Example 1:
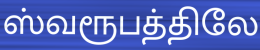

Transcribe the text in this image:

ஸ்வரூபத்திலே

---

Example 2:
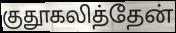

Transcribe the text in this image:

குதூகலித்தேன்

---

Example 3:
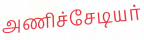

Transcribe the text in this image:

அணிச்சேடியர்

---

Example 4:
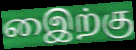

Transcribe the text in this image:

இைற்கு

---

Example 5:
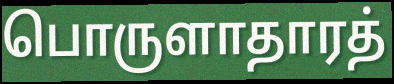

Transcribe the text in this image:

பொருளாதாரத்